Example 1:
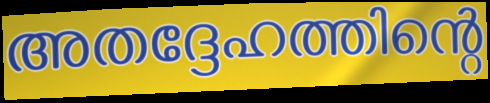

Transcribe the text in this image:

അതദ്ദേഹത്തിന്റെ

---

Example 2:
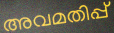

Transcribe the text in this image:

അവമതിപ്പ്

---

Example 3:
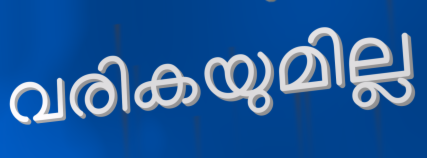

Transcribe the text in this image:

വരികയുമില്ല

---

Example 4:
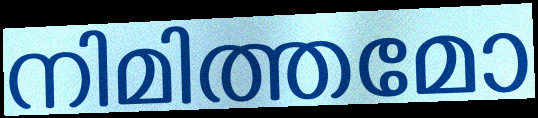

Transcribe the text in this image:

നിമിത്തമോ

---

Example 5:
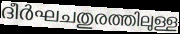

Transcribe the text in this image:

ദീർഘചതുരത്തിലുള്ള